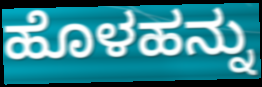
ಹೊಳಹನ್ನು